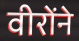
वीरोंने